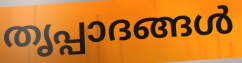
തൃപ്പാദങ്ങൾ